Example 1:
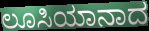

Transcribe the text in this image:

ಲೂಸಿಯಾನಾದ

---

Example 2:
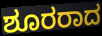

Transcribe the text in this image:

ಶೂರರಾದ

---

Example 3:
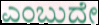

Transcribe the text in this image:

ಎಂಬುದೇ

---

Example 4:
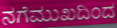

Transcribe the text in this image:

ನಗೆಮುಖದಿಂದ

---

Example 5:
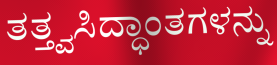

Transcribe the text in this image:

ತತ್ತ್ವಸಿದ್ಧಾಂತಗಳನ್ನು